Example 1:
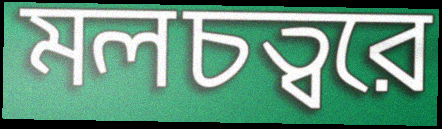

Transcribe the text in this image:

মলচত্বরে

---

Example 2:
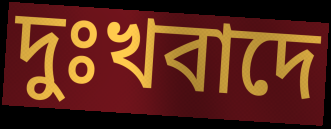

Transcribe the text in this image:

দুঃখবাদে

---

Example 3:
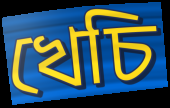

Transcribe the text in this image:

খেচি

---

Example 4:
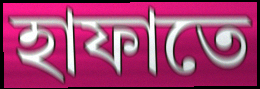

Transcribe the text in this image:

হাফাতে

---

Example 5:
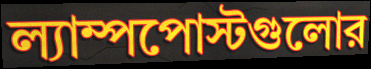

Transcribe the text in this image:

ল্যাম্পপোস্টগুলোর